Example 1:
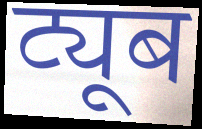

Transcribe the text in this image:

ट्यूब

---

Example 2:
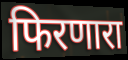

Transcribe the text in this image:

फिरणारा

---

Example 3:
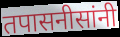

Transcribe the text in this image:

तपासनीसांनी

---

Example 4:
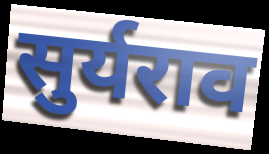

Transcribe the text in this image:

सुर्यराव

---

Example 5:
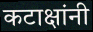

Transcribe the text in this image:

कटाक्षांनी